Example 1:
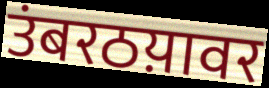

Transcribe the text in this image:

उंबरठय़ावर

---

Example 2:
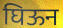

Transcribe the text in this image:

घिऊन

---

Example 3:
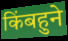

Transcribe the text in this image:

किंबहुने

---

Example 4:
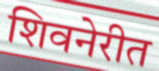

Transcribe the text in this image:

शिवनेरीत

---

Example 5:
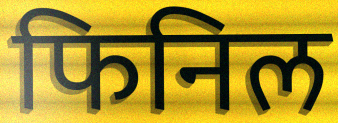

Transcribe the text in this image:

फिनिल